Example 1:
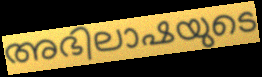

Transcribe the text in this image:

അഭിലാഷയുടെ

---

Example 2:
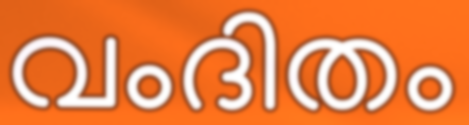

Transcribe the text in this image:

വംദിതം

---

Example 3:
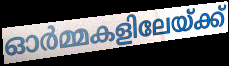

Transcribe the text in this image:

ഓർമ്മകളിലേയ്ക്ക്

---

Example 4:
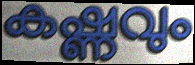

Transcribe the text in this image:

കഷ്ണവും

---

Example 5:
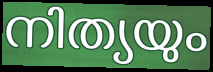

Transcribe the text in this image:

നിത്യയും